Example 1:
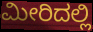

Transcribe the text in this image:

ಮೀರಿದಲ್ಲಿ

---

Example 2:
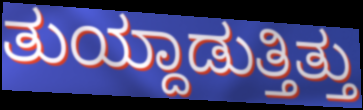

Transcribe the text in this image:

ತುಯ್ದಾಡುತ್ತಿತ್ತು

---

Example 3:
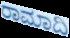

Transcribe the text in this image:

ರಾಮಾದಿ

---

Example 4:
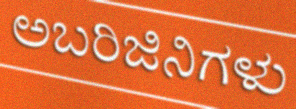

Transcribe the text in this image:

ಅಬರಿಜಿನಿಗಳು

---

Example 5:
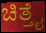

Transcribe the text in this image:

ಚಿತ್ತೈ